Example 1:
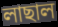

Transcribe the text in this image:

লাছাল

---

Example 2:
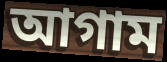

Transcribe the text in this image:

আগাম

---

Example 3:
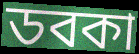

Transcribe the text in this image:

ডবকা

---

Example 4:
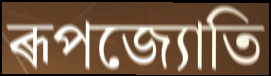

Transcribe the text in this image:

ৰূপজ্যোতি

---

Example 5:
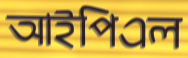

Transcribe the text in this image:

আইপিএল